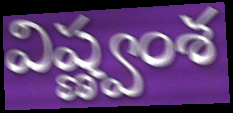
విష్ణ్వంశ